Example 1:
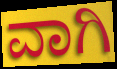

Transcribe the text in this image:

ವಾಗಿ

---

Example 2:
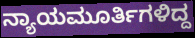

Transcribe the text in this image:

ನ್ಯಾಯಮೂರ್ತಿಗಳಿದ್ದ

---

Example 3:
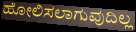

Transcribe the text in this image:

ಹೋಲಿಸಲಾಗುವುದಿಲ್ಲ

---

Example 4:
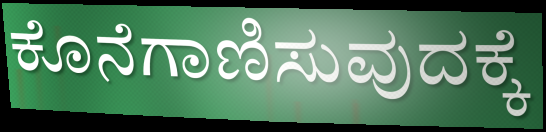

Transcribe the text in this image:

ಕೊನೆಗಾಣಿಸುವುದಕ್ಕೆ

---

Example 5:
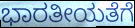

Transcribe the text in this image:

ಭಾರತೀಯತೆಗೆ